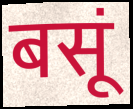
बसूं